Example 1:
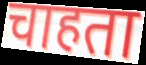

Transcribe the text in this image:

चाहता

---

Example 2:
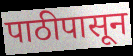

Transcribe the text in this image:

पाठीपासून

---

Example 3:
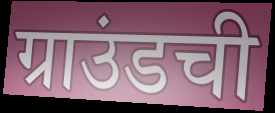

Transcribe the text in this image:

ग्राउंडची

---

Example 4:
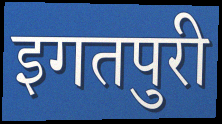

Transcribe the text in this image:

इगतपुरी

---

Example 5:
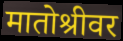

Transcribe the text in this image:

मातोश्रीवर